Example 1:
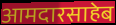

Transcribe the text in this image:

आमदारसाहेब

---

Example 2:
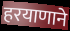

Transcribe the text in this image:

हरयाणाने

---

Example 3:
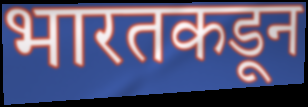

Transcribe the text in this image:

भारतकडून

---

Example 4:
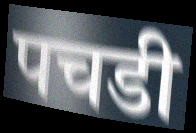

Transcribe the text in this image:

पचडी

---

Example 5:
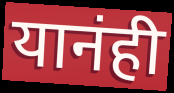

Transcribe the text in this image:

यानंही